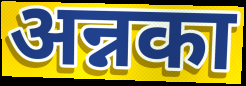
अन्नका